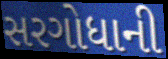
સરગોધાની